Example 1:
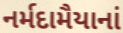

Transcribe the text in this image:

નર્મદામૈયાનાં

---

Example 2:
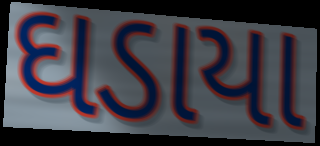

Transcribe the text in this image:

ઘડાયા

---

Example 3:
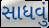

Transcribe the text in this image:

સાધવું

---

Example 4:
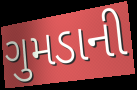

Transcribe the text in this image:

ગુમડાની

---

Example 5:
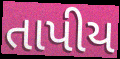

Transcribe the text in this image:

તાપીય